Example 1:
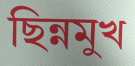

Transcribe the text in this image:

ছিন্নমুখ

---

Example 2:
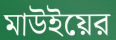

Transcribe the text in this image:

মাউইয়ের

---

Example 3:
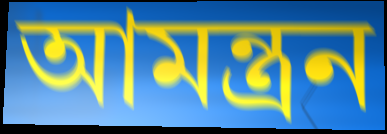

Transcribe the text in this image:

আমন্ত্রন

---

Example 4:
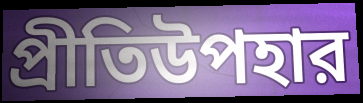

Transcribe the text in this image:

প্রীতিউপহার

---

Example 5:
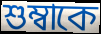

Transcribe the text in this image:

শুম্বাকে